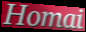
Homai